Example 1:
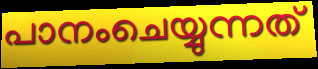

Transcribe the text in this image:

പാനംചെയ്യുന്നത്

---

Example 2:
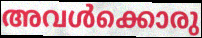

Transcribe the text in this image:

അവൾക്കൊരു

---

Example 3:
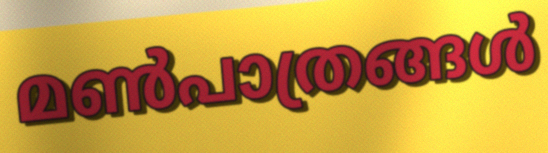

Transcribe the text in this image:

മൺപാത്രങ്ങൾ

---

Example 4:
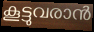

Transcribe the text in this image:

കൂട്ടുവരാൻ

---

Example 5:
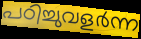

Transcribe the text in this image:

പഠിച്ചുവളർന്ന